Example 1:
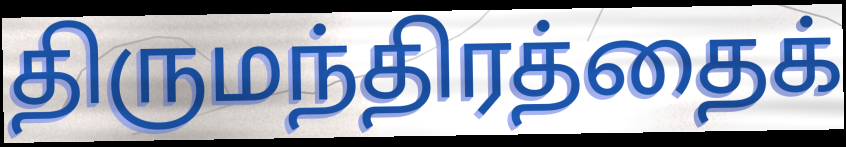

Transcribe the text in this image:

திருமந்திரத்தைக்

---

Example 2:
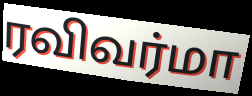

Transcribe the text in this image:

ரவிவர்மா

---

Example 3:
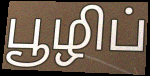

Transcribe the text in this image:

பூழிப்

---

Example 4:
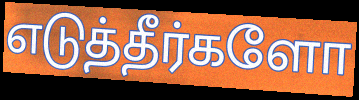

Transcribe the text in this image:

எடுத்தீர்களோ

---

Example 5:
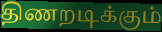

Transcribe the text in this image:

திணறடிக்கும்